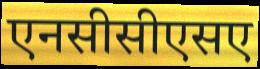
एनसीसीएसए